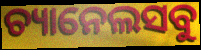
ଚ୍ୟାନେଲସବୁ